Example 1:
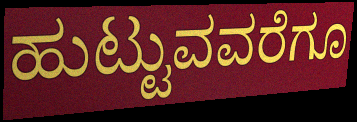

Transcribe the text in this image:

ಹುಟ್ಟುವವರೆಗೂ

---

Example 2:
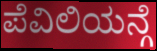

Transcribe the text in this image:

ಪೆವಿಲಿಯನ್ಗೆ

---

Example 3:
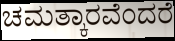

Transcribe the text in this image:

ಚಮತ್ಕಾರವೆಂದರೆ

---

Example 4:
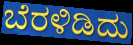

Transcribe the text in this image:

ಬೆರಳಿಡಿದು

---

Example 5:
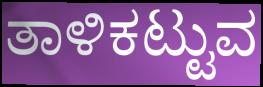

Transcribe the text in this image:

ತಾಳಿಕಟ್ಟುವ